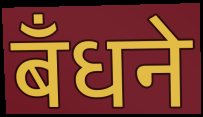
बँधने